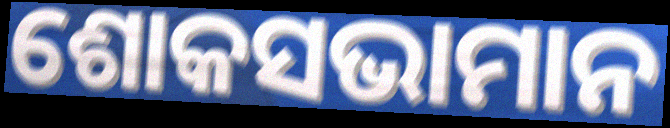
ଶୋକସଭାମାନ